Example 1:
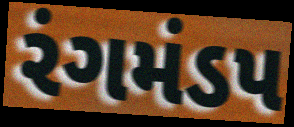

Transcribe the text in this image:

રંગમંડપ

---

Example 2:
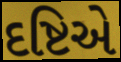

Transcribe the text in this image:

દષ્ટિએ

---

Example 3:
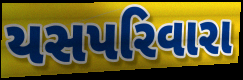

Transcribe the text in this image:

યસપરિવારા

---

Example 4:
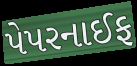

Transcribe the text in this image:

પેપરનાઈફ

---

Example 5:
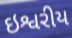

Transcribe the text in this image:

ઇશ્વરીય